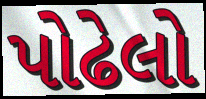
પોઢેલો